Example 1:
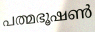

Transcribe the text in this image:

പത്മഭൂഷൺ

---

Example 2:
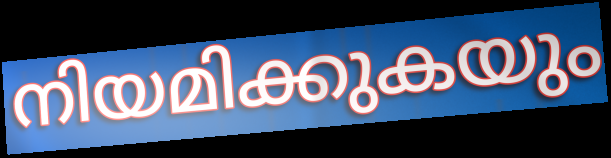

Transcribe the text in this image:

നിയമിക്കുകയും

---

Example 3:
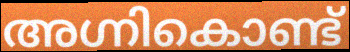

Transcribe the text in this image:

അഗ്നികൊണ്ട്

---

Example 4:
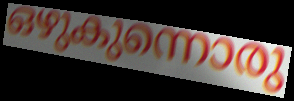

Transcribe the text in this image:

ഒഴുകുന്നൊരു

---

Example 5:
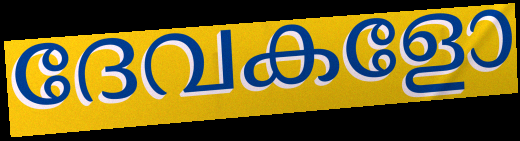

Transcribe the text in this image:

ദേവകളോ